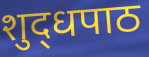
शुद्धपाठ